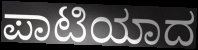
ಪಾಟಿಯಾದ